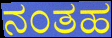
ನಂತಹ